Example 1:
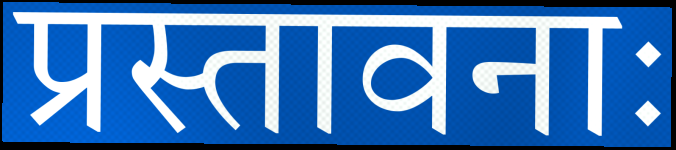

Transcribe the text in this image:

प्रस्तावनाः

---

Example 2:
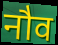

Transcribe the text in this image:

नौव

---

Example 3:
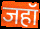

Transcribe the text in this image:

जहॉ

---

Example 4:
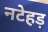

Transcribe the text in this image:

नटेहड़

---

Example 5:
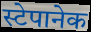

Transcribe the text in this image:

स्टेपानेक